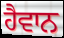
ਹੈਵਾਨ